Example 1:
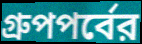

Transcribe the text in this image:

গ্রুপপর্বের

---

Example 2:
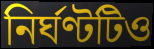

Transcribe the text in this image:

নির্ঘণ্টটিও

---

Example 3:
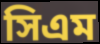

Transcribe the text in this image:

সিএম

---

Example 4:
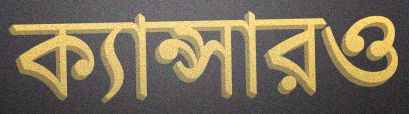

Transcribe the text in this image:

ক্যান্সারও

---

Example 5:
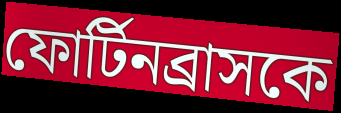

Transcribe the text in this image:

ফোর্টিনব্রাসকে